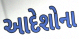
આદેશોના